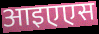
आइएएस